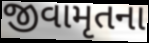
જીવામૃતના